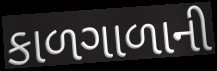
કાળગાળાની